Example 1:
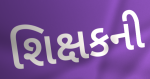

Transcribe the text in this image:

શિક્ષકની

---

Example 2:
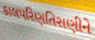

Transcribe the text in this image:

કાલપરિણતિરાણીને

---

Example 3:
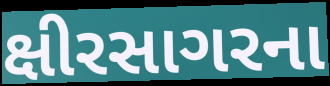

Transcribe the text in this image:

ક્ષીરસાગરના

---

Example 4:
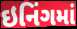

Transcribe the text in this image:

ઇનિંગમાં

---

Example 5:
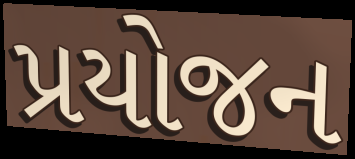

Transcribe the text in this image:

પ્રયોજન